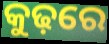
କୁଢ଼ରେ